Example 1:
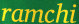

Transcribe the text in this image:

ramchi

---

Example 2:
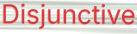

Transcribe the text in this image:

Disjunctive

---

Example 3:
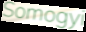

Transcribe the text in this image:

Somogyi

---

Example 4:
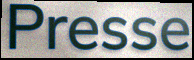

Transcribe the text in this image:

Presse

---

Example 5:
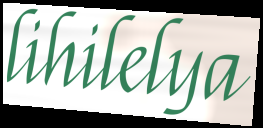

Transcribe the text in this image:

lihilelya